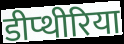
डीप्थीरिया